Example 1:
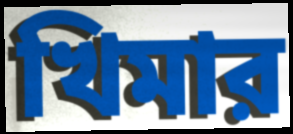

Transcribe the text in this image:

খিমার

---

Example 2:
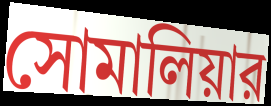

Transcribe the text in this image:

সোমালিয়ার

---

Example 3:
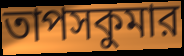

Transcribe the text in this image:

তাপসকুমার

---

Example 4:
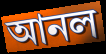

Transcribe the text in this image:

আনল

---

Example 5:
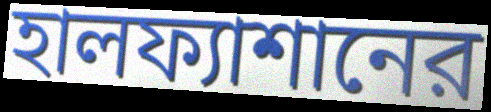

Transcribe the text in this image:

হালফ্যাশানের